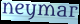
neymar